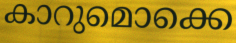
കാറുമൊക്കെ